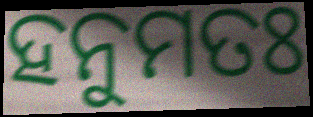
ହନୁମତଃ